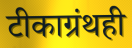
टीकाग्रंथही